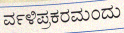
ರ್ವಳಿಪ್ರಕರಮಂದು